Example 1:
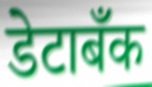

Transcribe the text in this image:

डेटाबँक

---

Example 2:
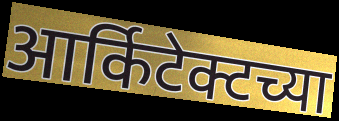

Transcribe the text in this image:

आर्किटेक्टच्या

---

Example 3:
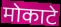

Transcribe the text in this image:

मोकाटे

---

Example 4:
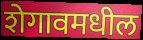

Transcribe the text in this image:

शेगावमधील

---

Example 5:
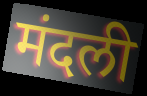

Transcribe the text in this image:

मंदली